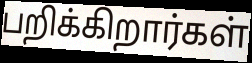
பறிக்கிறார்கள்